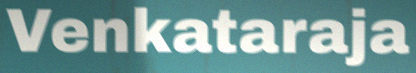
Venkataraja